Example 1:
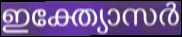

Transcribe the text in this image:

ഇക്ത്യോസർ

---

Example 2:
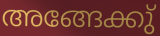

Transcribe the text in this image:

അങ്ങേക്കു്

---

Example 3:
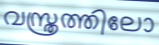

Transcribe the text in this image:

വസ്ത്രത്തിലോ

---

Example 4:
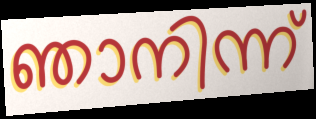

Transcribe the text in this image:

ഞാനിന്ന്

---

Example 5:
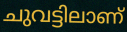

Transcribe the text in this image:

ചുവട്ടിലാണ്